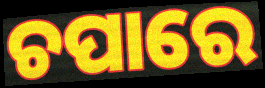
ଚପାରେ